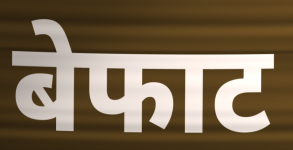
बेफाट